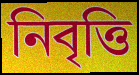
নিবৃত্তি